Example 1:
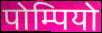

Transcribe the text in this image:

पोम्पियो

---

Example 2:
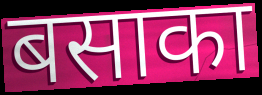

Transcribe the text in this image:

बसाका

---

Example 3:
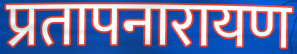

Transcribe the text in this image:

प्रतापनारायण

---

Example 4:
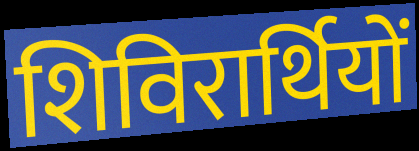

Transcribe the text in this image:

शिविरार्थियों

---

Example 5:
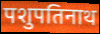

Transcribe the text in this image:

पशुपतिनाथ